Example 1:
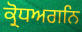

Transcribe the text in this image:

ਕ੍ਰੋਧਅਗਨਿ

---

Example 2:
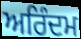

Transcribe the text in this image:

ਅਰਿੰਦਮ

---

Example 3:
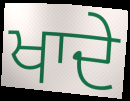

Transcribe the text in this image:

ਖਾਦੇ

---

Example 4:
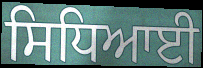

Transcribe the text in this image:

ਸਿਧਿਆਈ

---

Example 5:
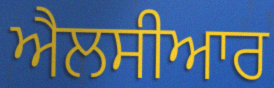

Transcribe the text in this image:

ਐਲਸੀਆਰ